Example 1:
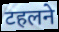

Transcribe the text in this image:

टहलने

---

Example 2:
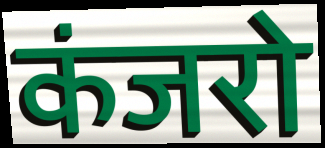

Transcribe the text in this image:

कंजरो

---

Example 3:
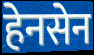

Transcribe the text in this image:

हेनसेन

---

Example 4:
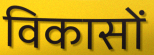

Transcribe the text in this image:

विकासों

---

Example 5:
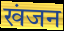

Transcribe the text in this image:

खंजन